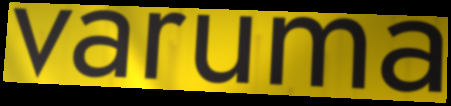
varuma